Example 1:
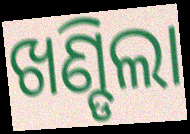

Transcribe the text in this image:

ଖଣ୍ଡିଲା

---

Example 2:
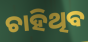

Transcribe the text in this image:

ଚାହିଥିବ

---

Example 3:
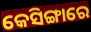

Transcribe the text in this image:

କେସିଙ୍ଗାରେ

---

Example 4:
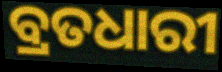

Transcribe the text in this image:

ବ୍ରତଧାରୀ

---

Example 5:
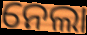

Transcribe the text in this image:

ନେଲା